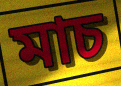
মাচ